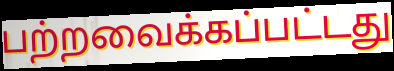
பற்றவைக்கப்பட்டது